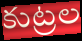
కుట్రల